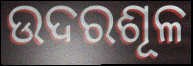
ଉଦରଶୂଳ